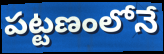
పట్టణంలోనే